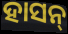
ହାସନ୍